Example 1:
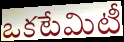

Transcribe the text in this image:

ఒకటేమిటీ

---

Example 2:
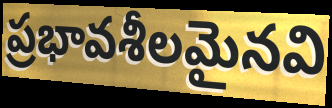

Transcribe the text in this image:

ప్రభావశీలమైనవి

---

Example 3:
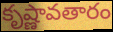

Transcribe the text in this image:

కృష్ణావతారం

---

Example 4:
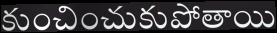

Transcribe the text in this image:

కుంచించుకుపోతాయి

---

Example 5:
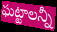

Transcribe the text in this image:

ఘట్టాలన్నీ